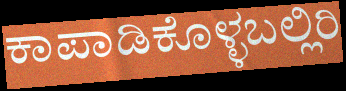
ಕಾಪಾಡಿಕೊಳ್ಳಬಲ್ಲಿರಿ